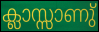
ക്ലാസ്സാണു്